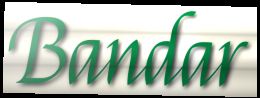
Bandar